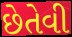
છેતેવી